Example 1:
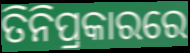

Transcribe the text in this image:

ତିନିପ୍ରକାରରେ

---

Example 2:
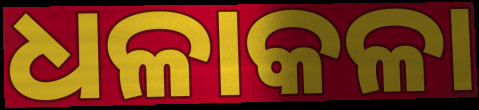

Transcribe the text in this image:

ଧଳାକଳା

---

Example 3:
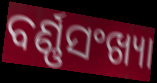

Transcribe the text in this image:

ବର୍ଣ୍ଣସଂଖ୍ୟା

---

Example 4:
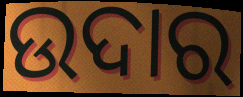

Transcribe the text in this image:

ଉଦାର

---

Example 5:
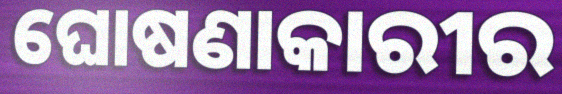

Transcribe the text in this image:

ଘୋଷଣାକାରୀର